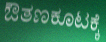
ಔತಣಕೂಟಕ್ಕೆ